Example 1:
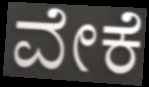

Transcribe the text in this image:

ವೇಕೆ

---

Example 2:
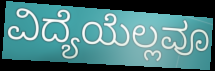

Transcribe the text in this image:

ವಿದ್ಯೆಯೆಲ್ಲವೂ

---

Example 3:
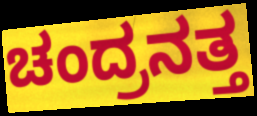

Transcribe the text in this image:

ಚಂದ್ರನತ್ತ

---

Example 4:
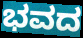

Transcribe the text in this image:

ಭವದ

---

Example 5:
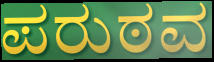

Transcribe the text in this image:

ಪರುಠವ